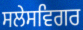
ਸਲੇਸਵਿਗਰ